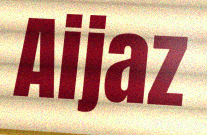
Aijaz